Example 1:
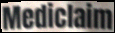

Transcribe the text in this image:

Mediclaim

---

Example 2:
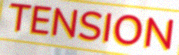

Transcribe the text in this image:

TENSION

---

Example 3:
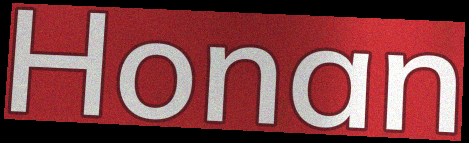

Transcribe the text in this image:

Honan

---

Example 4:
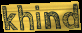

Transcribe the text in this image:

khind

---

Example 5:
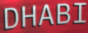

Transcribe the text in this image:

DHABI